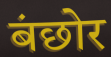
बंछोर